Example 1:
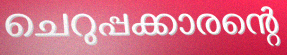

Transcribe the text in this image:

ചെറുപ്പക്കാരന്റെ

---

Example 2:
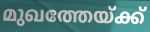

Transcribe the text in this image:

മുഖത്തേയ്ക്ക്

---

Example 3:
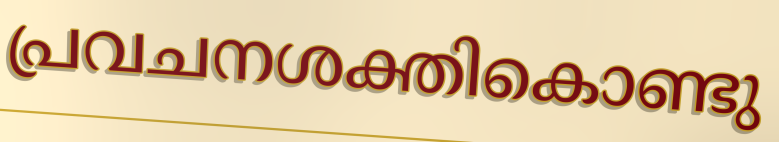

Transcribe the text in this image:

പ്രവചനശക്തികൊണ്ടു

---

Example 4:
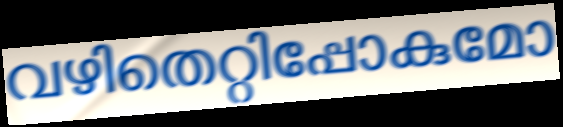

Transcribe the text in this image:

വഴിതെറ്റിപ്പോകുമോ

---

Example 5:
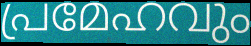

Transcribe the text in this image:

പ്രമേഹവും